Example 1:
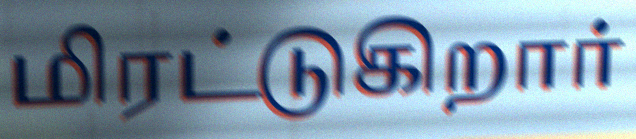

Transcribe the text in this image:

மிரட்டுகிறார்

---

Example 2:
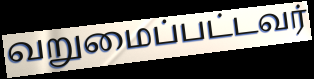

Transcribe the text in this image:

வறுமைப்பட்டவர்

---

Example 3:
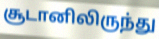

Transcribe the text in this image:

சூடானிலிருந்து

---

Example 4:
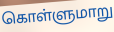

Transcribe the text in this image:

கொள்ளுமாறு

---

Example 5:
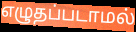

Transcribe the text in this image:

எழுதப்படாமல்